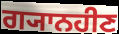
ਗ੍ਯਾਨਹੀਣ